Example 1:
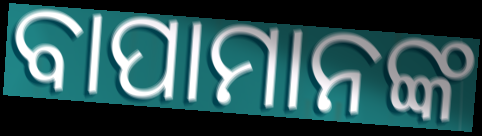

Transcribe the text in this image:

ବାପାମାନଙ୍କ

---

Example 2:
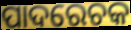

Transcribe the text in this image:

ପାଦରେଚକ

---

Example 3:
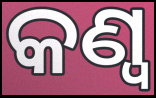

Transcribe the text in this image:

କଣ୍ୱ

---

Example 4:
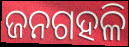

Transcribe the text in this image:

ଜନଗହଳି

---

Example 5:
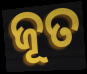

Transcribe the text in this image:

ଜୂତ